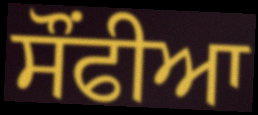
ਸੌਂਫੀਆ